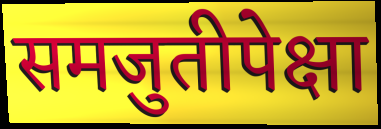
समजुतीपेक्षा